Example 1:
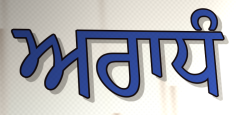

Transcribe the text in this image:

ਅਰਾਧੰ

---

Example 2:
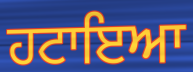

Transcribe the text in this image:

ਹਟਾਇਆ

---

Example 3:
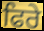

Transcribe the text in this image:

ਫਿਰੇ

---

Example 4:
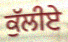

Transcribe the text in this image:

ਕੁੱਲੀਏ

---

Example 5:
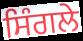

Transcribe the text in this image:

ਸਿੰਗਲੇ